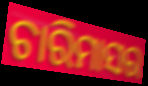
ଚାରିମାସର